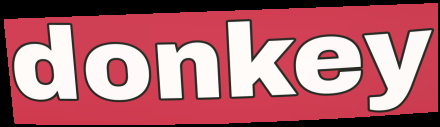
donkey